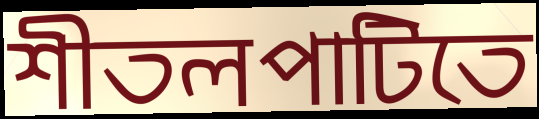
শীতলপাটিতে